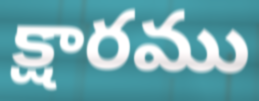
క్షారము